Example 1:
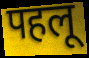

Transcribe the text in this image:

पहलू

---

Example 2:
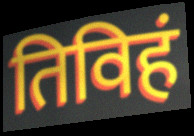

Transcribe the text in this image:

तिविहं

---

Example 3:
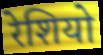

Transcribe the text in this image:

रेशियो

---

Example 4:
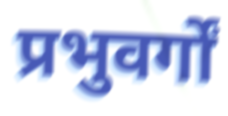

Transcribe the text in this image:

प्रभुवर्गों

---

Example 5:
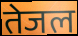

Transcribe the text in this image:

तेजल